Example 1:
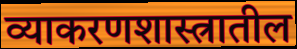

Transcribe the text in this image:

व्याकरणशास्त्रातील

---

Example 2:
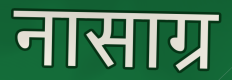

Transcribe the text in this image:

नासाग्र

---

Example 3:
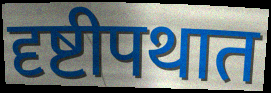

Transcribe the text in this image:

दृष्टीपथात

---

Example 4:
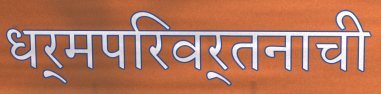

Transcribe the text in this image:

धर्मपरिवर्तनाची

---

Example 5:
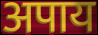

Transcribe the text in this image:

अपाय